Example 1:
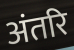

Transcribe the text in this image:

अंतरि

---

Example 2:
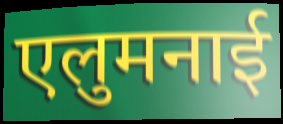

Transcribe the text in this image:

एलुमनाई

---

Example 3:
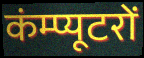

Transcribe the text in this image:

कंम्प्यूटरों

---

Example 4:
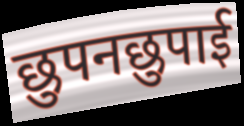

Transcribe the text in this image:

छुपनछुपाई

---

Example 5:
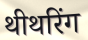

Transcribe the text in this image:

थीथरिंग